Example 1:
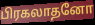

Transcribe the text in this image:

பிரகலாதனோ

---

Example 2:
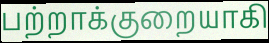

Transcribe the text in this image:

பற்றாக்குறையாகி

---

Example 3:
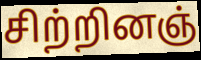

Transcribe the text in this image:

சிற்றினஞ்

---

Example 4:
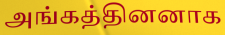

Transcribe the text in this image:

அங்கத்தினனாக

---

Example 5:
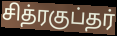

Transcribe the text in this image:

சித்ரகுப்தர்